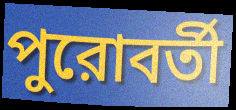
পুরোবর্তী